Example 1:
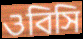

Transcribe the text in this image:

ওবিসি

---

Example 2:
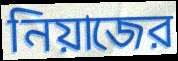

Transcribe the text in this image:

নিয়াজের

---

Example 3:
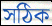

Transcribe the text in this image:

সঠিক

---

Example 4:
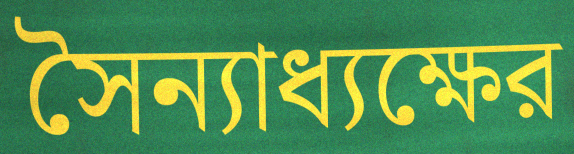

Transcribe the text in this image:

সৈন্যাধ্যক্ষের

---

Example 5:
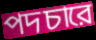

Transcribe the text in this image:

পদচারে